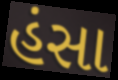
હંસા